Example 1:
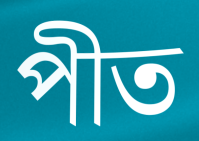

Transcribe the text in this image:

পীত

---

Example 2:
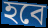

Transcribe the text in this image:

হবে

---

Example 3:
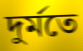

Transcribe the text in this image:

দুর্মতে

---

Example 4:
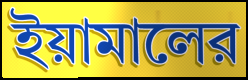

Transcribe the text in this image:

ইয়ামালের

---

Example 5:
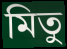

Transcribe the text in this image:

মিতু